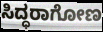
ಸಿದ್ಧರಾಗೋಣ